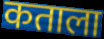
कताला